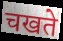
चखते